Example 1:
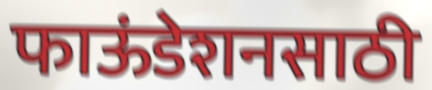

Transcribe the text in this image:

फाऊंडेशनसाठी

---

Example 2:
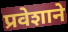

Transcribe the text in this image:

प्रवेशाने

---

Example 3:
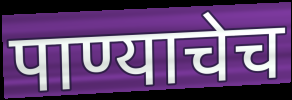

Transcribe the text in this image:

पाण्याचेच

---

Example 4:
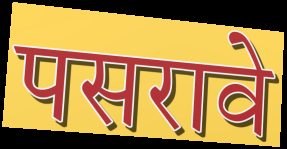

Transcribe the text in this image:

पसरावे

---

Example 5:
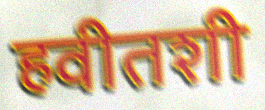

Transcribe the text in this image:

हवीतशी